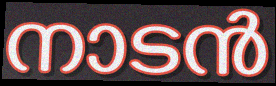
നാടൻ